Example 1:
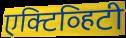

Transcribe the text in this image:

एक्टिव्हिटी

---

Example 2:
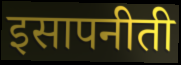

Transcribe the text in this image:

इसापनीती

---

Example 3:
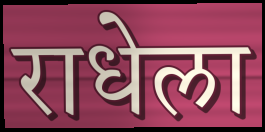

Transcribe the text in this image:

राधेला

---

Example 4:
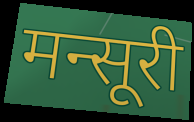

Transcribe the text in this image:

मन्सूरी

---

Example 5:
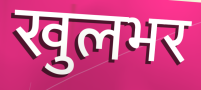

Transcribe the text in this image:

खुलभर